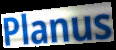
Planus